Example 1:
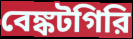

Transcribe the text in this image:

বেঙ্কটগিরি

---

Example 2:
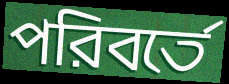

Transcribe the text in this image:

পরিবর্তে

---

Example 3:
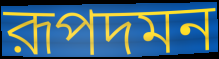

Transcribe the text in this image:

রূপদমন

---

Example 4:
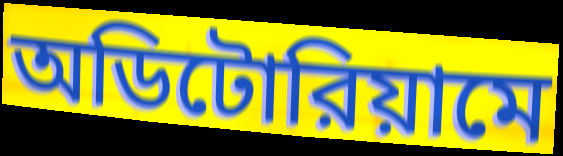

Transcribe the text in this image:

অডিটোরিয়ামে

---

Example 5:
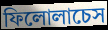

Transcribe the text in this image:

ফিলোলাচেস